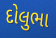
દોલુભા